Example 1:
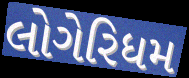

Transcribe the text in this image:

લોગેરિધમ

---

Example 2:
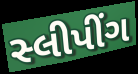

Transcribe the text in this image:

સ્લીપીંગ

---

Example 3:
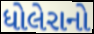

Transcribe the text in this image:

ધોલેરાનો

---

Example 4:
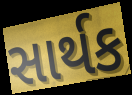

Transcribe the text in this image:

સાર્થક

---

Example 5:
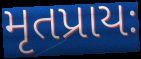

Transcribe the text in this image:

મૃતપ્રાયઃ